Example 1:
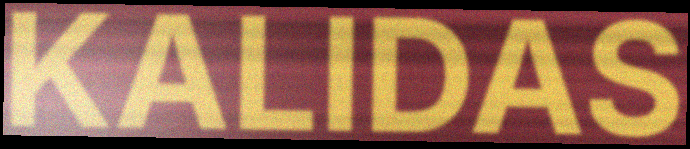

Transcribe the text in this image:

KALIDAS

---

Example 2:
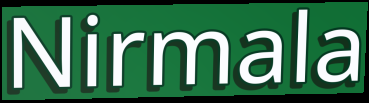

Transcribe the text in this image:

Nirmala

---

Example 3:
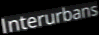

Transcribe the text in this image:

Interurbans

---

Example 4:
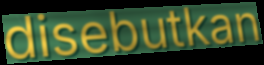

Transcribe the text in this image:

disebutkan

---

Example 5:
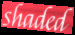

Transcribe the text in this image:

shaded